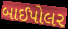
બાઈપોલર